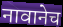
नावानेच